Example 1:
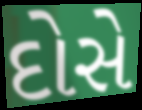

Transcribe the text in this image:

દોસે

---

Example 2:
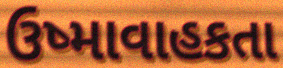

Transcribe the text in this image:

ઉષ્માવાહકતા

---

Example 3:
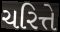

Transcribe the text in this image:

ચરિત્તે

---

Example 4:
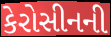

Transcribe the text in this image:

કેરોસીનની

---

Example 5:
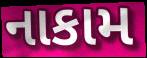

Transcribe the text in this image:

નાકામ